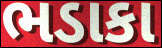
ભડાકા